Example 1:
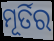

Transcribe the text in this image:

ମୂର୍ତିର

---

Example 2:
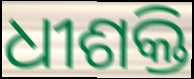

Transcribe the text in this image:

ଧୀଶକ୍ତି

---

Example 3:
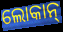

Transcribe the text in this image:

ଲୋକାନ୍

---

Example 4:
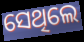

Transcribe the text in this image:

ସେଥିଲେ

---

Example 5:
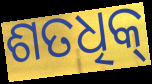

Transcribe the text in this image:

ଶତଧିକ୍